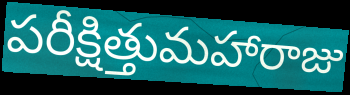
పరీక్షిత్తుమహారాజు